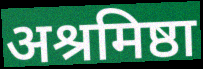
अश्रमिष्ठा